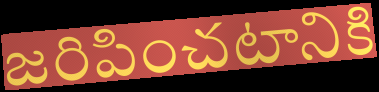
జరిపించటానికి